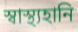
স্বাস্থ্যহানি